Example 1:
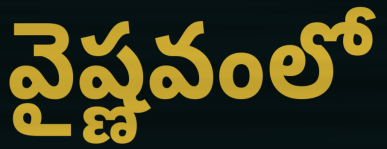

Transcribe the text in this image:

వైష్ణవంలో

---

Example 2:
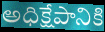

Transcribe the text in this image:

అధిక్షేపానికి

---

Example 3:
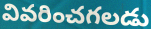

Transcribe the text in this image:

వివరించగలడు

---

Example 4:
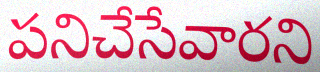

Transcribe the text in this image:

పనిచేసేవారని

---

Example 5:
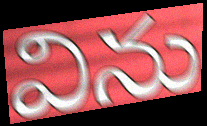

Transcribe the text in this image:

విను